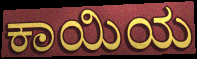
ಕಾಯಿಯ